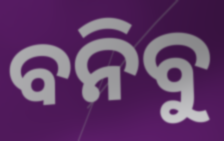
ବନିବୁ